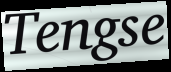
Tengse